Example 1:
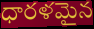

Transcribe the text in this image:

ధారళమైన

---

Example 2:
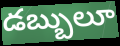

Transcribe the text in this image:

డబ్బులూ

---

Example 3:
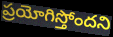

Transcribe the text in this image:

ప్రయోగిస్తోందని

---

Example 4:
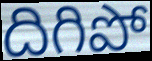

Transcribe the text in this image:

దిగిపో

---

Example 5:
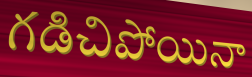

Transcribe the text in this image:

గడిచిపోయినా